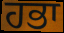
ਹਭਾ